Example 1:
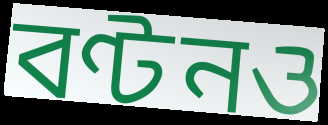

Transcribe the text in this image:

বণ্টনও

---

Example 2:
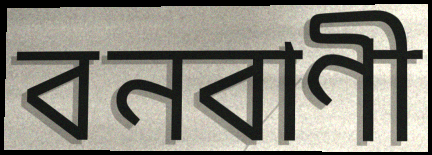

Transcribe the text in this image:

বনবাণী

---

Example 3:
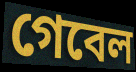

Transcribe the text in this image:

গেবেল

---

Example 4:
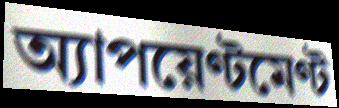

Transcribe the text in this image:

অ্যাপয়েণ্টমেণ্ট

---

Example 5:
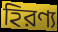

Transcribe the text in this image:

হিরণ্য